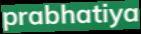
prabhatiya